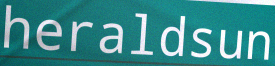
heraldsun